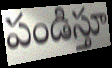
పండిస్తూ